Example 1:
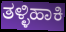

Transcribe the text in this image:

ತಳ್ಳಿಹಾಕಿ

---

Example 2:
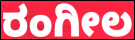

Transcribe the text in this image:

ರಂಗೀಲ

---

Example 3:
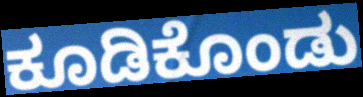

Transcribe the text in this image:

ಕೂಡಿಕೊಂಡು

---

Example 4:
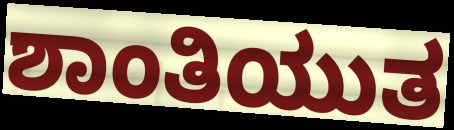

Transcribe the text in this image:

ಶಾಂತಿಯುತ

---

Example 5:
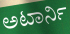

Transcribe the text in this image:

ಅಟಾರ್ನಿ